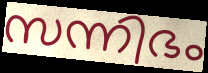
സന്നിഭം